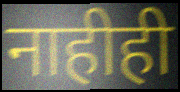
नाहीही